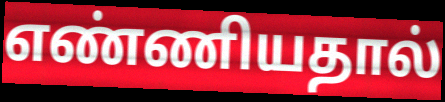
எண்ணியதால்